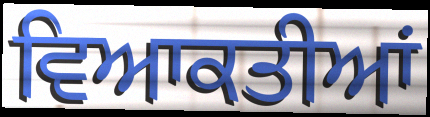
ਵਿਆਕਤੀਆਂ